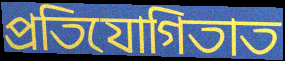
প্ৰতিযোগিতাত